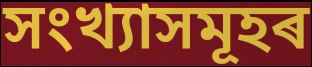
সংখ্যাসমূহৰ